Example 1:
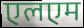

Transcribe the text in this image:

एलएम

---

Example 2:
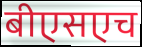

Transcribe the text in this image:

बीएसएच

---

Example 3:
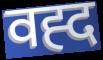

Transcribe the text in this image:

वह्द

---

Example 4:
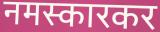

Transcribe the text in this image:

नमस्कारकर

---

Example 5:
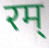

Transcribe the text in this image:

रम्